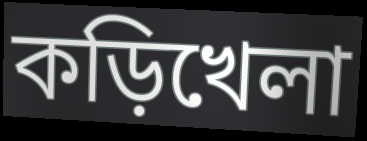
কড়িখেলা